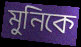
মুনিকে